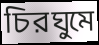
চিরঘুমে